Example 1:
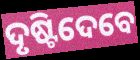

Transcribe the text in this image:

ଦୃଷ୍ଟିଦେବେ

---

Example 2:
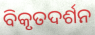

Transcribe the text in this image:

ବିକୃତଦର୍ଶନ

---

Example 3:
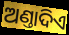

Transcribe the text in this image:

ଅଣ୍ତାଦିଏ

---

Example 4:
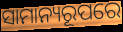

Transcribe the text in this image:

ସାମାନ୍ୟରୂପରେ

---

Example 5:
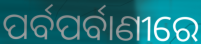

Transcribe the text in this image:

ପର୍ବପର୍ବାଣୀରେ